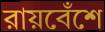
রায়বেঁশে